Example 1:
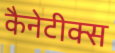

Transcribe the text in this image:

कैनेटीक्स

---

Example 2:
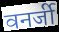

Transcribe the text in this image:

वनर्जी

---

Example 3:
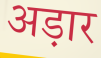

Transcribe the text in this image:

अड़ार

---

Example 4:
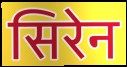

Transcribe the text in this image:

सिरेन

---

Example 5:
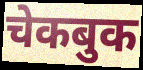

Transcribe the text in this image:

चेकबुक